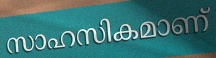
സാഹസികമാണ്